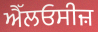
ਐੱਲਓਸੀਜ਼